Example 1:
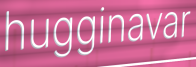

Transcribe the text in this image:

hugginavar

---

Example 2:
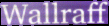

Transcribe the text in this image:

Wallraff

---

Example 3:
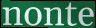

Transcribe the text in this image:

nonte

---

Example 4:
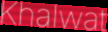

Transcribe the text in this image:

Khalwat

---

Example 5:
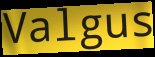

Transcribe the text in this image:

Valgus